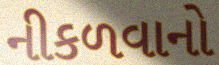
નીકળવાનો